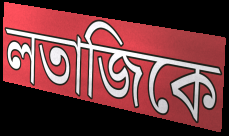
লতাজিকে